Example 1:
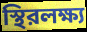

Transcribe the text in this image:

স্থিরলক্ষ্য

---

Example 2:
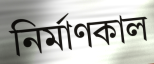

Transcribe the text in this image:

নির্মাণকাল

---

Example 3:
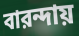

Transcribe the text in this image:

বারন্দায়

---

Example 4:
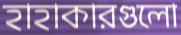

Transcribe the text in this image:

হাহাকারগুলো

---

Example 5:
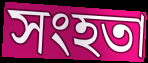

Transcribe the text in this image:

সংহতা